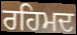
ਰਹਿਮਦ